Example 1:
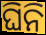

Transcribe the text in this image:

ଘିନି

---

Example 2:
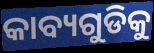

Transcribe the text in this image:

କାବ୍ୟଗୁଡିକୁ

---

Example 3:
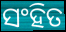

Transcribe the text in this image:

ସଂହିତ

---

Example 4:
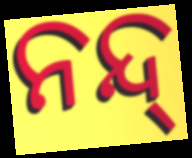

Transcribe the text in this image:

ନନ୍ଦ୍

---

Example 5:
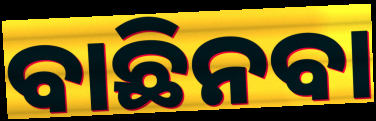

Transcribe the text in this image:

ବାଛିନବା